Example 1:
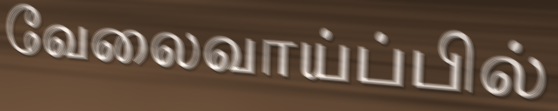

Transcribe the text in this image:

வேலைவாய்ப்பில்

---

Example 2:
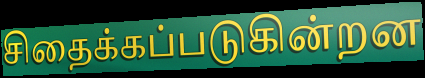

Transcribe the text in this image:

சிதைக்கப்படுகின்றன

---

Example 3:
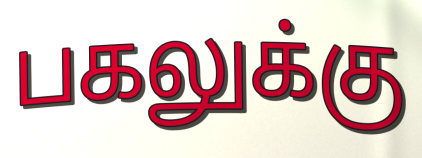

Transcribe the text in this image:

பகலுக்கு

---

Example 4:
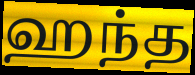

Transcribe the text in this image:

ஹந்த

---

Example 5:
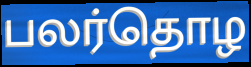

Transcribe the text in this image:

பலர்தொழ